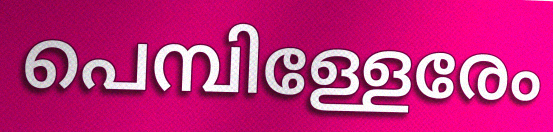
പെമ്പിള്ളേരേം